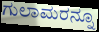
ಗುಲಾಮರನ್ನೂ